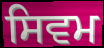
ਸਿਵਮ